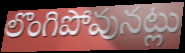
లొంగిపోవునట్లు